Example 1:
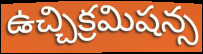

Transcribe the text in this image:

ఉచ్చిక్రమిషన్స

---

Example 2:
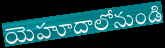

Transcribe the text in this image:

యెహూదాలోనుండి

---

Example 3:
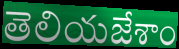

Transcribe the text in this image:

తెలియజేశాం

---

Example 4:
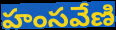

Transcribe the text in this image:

హంసవేణి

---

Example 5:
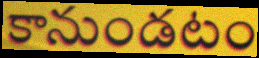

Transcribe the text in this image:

కానుండటం